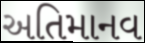
અતિમાનવ